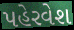
પહેરવેશ